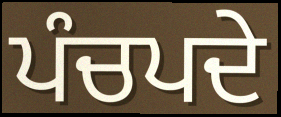
ਪੰਚਪਦੇ